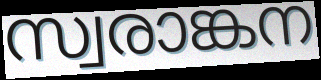
സ്വരാങ്കന